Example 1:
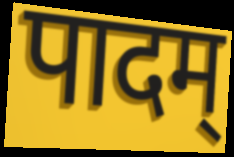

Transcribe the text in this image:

पादम्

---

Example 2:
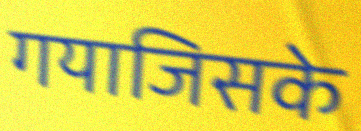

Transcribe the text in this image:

गयाजिसके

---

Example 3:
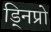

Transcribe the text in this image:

ड्निप्रो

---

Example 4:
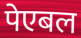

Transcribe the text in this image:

पेएबल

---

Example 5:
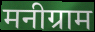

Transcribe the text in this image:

मनीग्राम